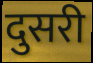
दुसरी